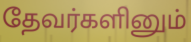
தேவர்களினும்